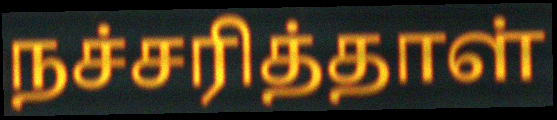
நச்சரித்தாள்